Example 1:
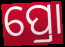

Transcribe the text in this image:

ପ୍ରୋ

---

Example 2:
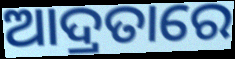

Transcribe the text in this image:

ଆଦ୍ରତାରେ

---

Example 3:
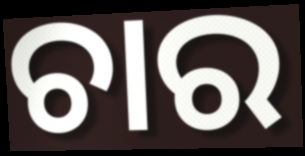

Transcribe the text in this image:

ଚାର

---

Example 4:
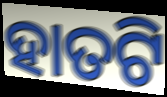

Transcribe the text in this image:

ହାତଟି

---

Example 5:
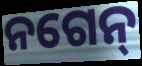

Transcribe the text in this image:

ନଗେନ୍